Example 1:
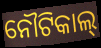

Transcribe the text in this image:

ନୌଟିକାଲ୍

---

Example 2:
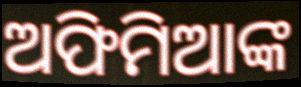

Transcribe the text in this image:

ଅଫିମିଆଙ୍କ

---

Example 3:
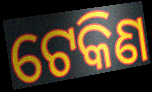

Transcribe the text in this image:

ଟେକିଣ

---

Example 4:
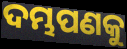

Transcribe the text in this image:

ଦମ୍ଭପଣକୁ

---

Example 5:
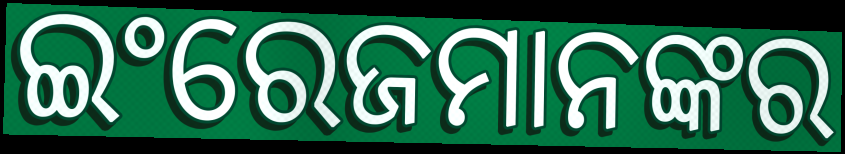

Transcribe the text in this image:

ଇଂରେଜମାନଙ୍କର